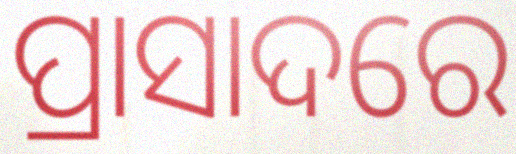
ପ୍ରାସାଦରେ